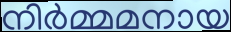
നിർമ്മമനായ